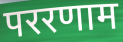
पररणाम